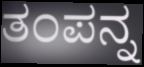
ತಂಪನ್ನ